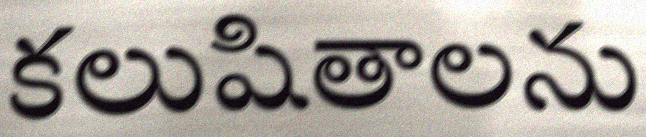
కలుషితాలను